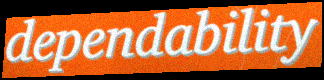
dependability